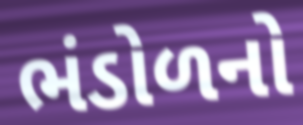
ભંડોળનો